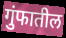
गुंफातील